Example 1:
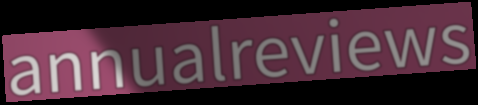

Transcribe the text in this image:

annualreviews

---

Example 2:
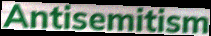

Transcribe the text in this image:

Antisemitism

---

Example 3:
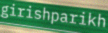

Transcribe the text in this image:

girishparikh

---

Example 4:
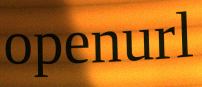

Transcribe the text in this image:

openurl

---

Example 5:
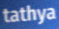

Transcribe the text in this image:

tathya